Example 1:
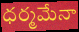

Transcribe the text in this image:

ధర్మమేనా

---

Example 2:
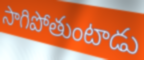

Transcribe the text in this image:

సాగిపోతుంటాడు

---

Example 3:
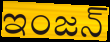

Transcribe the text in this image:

ఇంజన్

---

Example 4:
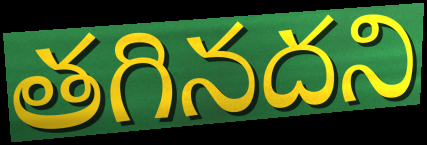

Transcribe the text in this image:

తగినదని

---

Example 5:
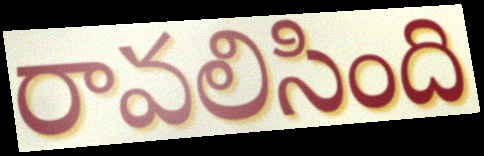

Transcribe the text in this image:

రావలిసింది